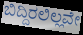
ಬಿದ್ದಿರಲಿಲ್ಲವೇ